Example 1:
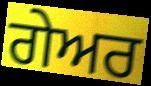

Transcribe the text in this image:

ਗੇਅਰ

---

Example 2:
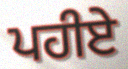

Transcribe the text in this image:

ਪਹੀਏ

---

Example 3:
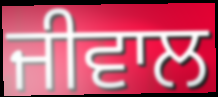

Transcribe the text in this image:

ਜੀਵਾਲ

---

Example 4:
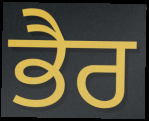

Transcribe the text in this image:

ਭੈਰ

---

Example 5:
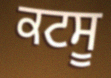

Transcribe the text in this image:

ਕਟਸੂ